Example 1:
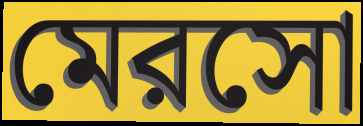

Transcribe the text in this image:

মেরসো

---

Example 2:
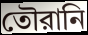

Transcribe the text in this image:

তৌরানি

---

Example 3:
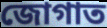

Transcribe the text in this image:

জোগাত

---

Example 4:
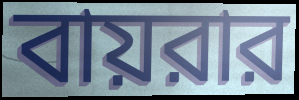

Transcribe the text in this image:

বায়রার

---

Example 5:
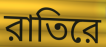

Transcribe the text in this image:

রাতিরে